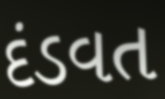
દંડવત